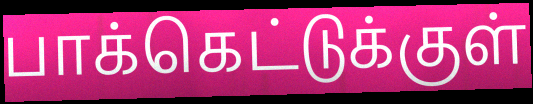
பாக்கெட்டுக்குள்